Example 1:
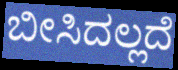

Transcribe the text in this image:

ಬೀಸಿದಲ್ಲದೆ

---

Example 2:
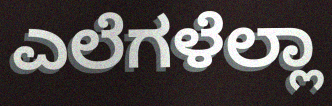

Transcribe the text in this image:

ಎಲೆಗಳೆಲ್ಲಾ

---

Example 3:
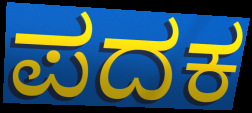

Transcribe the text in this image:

ಪದಕ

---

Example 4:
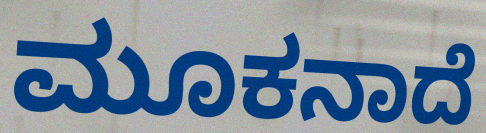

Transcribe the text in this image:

ಮೂಕನಾದೆ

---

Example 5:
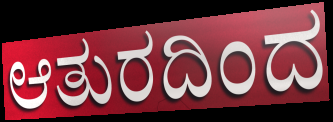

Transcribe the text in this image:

ಆತುರದಿಂದ